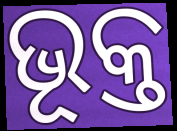
ଭୂକ୍ତ